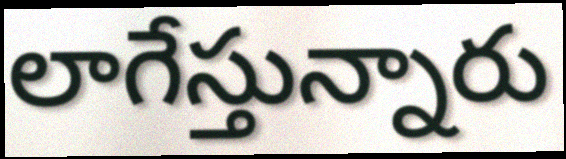
లాగేస్తున్నారు